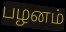
பழனம்